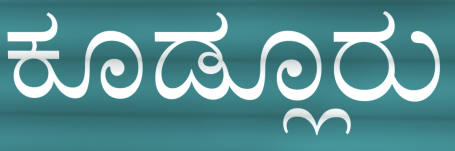
ಕೂಡ್ಲೂರು